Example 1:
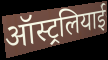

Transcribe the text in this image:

ऑस्ट्रलियाई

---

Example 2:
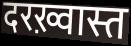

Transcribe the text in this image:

दरख़्वास्त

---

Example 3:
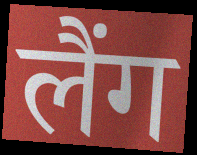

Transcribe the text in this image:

लैंग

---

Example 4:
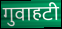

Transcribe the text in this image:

गुवाहटी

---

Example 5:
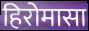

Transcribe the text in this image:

हिरोमासा